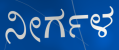
ನೀರ್ಗಳ